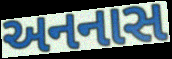
અનનાસ